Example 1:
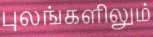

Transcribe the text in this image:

புலங்களிலும்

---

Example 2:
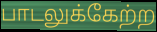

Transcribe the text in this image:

பாடலுக்கேற்ற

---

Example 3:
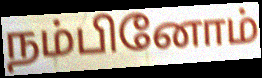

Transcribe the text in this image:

நம்பினோம்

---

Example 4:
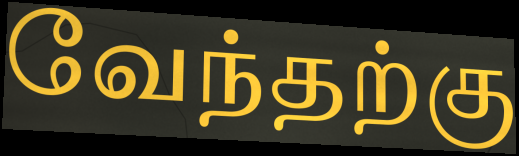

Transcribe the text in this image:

வேந்தற்கு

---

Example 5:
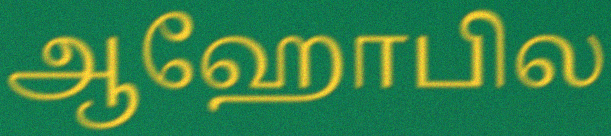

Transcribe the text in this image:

ஆஹோபில